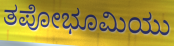
ತಪೋಭೂಮಿಯು